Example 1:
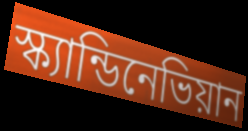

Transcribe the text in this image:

স্ক্যান্ডিনেভিয়ান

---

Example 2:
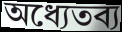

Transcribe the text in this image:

অধ্যেতব্য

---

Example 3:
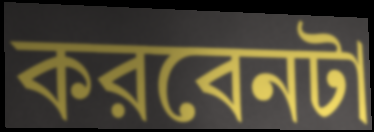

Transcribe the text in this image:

করবেনটা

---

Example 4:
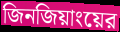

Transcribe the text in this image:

জিনজিয়াংয়ের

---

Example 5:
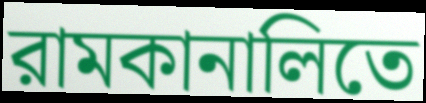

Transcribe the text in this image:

রামকানালিতে